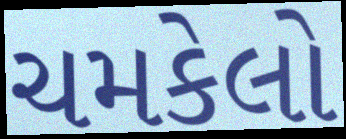
ચમકેલો